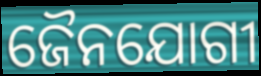
ଜୈନଯୋଗୀ